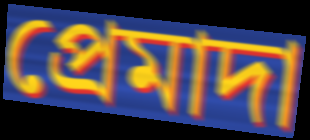
প্ৰেমাদা